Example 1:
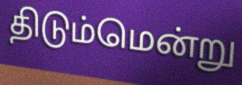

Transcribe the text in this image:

திடும்மென்று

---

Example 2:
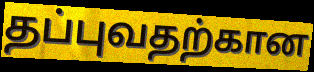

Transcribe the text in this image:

தப்புவதற்கான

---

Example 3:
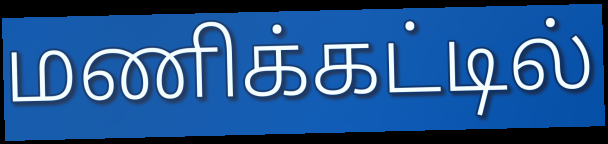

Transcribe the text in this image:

மணிக்கட்டில்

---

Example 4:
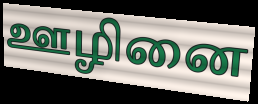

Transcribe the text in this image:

ஊழினை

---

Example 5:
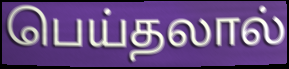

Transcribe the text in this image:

பெய்தலால்